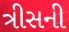
ત્રીસની